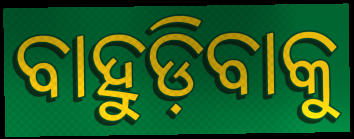
ବାହୁଡ଼ିବାକୁ